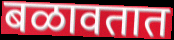
बळावतात